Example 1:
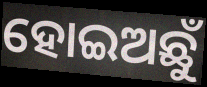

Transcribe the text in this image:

ହୋଇଅଛୁଁ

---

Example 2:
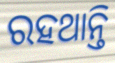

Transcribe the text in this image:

ରହଥାନ୍ତି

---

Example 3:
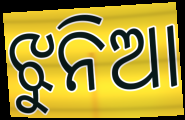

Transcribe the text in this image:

ଝୁନିଆ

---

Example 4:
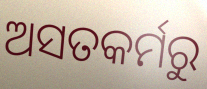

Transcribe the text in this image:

ଅସତକର୍ମରୁ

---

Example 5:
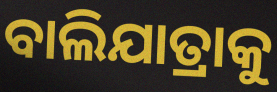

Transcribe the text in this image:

ବାଲିଯାତ୍ରାକୁ